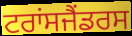
ਟਰਾਂਸਜੈਂਡਰਸ